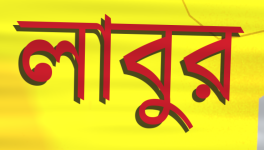
লাবুর